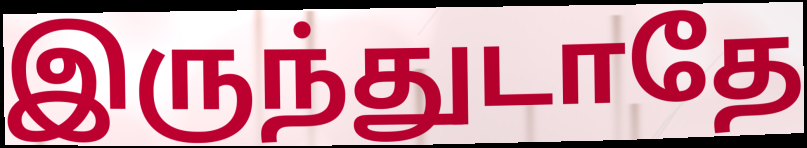
இருந்துடாதே